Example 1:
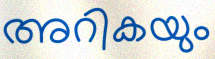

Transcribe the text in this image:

അറികയും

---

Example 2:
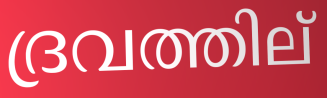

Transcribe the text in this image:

ദ്രവത്തില്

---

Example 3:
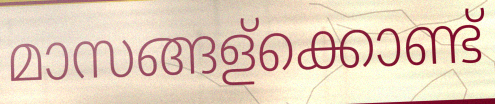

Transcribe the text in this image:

മാസങ്ങള്ക്കൊണ്ട്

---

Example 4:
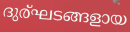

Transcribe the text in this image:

ദുര്ഘടങ്ങളായ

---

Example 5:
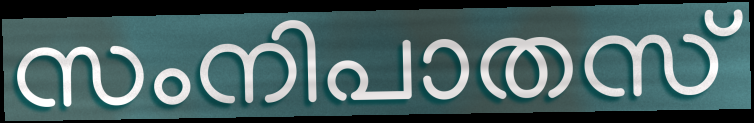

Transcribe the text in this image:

സംനിപാതസ്